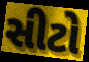
સીટો